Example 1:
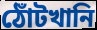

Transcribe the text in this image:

ঠোঁটখানি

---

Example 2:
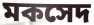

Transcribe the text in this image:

মকসেদ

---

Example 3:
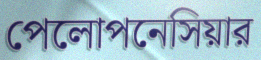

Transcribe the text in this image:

পেলোপনেসিয়ার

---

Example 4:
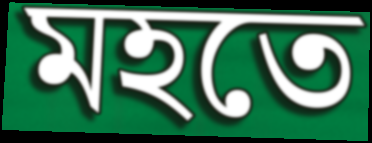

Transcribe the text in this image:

মহতে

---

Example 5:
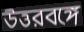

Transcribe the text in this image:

উত্তরবঙ্গে